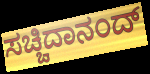
ಸಚ್ಚಿದಾನಂದ್